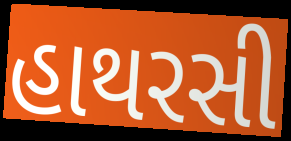
હાથરસી